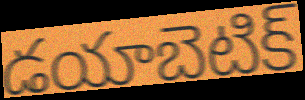
డయాబెటిక్